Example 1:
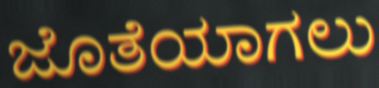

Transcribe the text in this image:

ಜೊತೆಯಾಗಲು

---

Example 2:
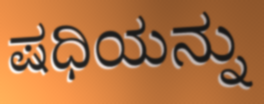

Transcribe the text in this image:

ಷಧಿಯನ್ನು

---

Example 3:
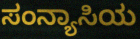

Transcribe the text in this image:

ಸಂನ್ಯಾಸಿಯ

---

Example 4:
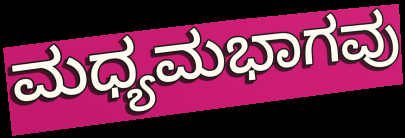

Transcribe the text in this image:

ಮಧ್ಯಮಭಾಗವು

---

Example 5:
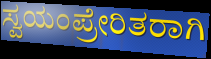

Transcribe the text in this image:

ಸ್ವಯಂಪ್ರೇರಿತರಾಗಿ